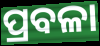
ପ୍ରବଳା